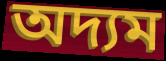
অদ্যম